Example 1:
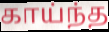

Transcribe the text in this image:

காய்ந்த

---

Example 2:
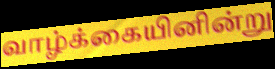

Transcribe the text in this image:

வாழ்க்கையினின்று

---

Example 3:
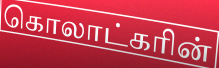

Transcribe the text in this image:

கொலாட்கரின்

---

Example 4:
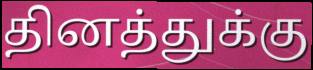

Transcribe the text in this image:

தினத்துக்கு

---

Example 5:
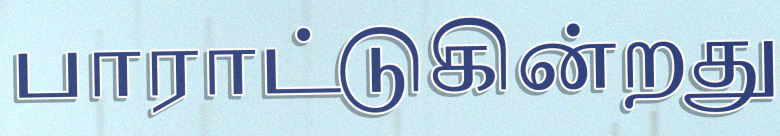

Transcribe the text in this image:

பாராட்டுகின்றது